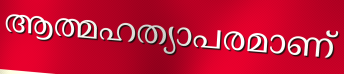
ആത്മഹത്യാപരമാണ്